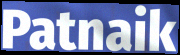
Patnaik